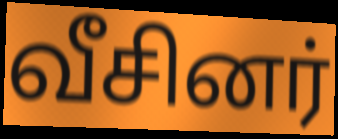
வீசினர்